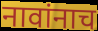
नावांनाच